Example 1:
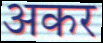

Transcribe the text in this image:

अकर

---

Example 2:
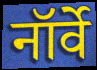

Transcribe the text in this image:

नॉर्वे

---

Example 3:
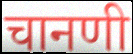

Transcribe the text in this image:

चानणी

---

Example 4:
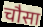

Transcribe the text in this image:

चौसा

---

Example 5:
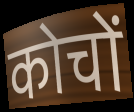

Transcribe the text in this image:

कोचों